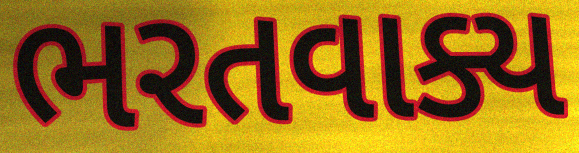
ભરતવાક્ય